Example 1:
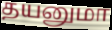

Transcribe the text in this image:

தயனுமா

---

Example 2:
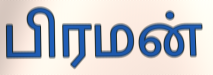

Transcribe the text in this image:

பிரமன்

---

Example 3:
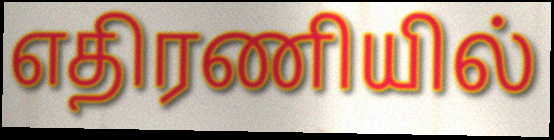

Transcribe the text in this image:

எதிரணியில்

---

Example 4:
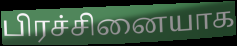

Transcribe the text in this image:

பிரச்சினையாக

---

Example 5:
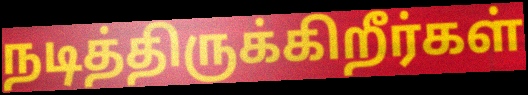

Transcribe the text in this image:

நடித்திருக்கிறீர்கள்